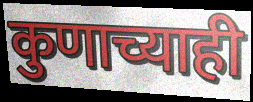
कुणाच्याही